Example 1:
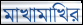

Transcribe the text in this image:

মাখামাখির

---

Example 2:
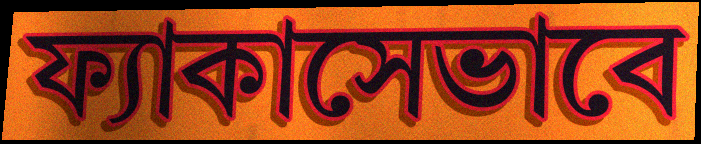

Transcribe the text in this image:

ফ্যাকাসেভাবে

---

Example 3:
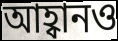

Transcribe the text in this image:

আহ্বানও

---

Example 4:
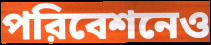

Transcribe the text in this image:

পরিবেশনেও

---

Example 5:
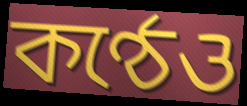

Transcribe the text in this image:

কণ্ঠেও